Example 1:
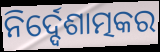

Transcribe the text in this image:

ନିର୍ଦ୍ଦେଶାତ୍ମକର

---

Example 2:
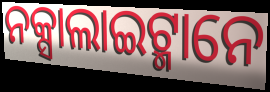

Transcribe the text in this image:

ନକ୍ସାଲାଇଟ୍ମାନେ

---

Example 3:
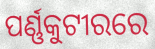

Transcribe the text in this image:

ପର୍ଣ୍ଣକୁଟୀରରେ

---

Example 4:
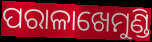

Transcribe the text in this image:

ପରାଳାଖେମୁଣ୍ଡି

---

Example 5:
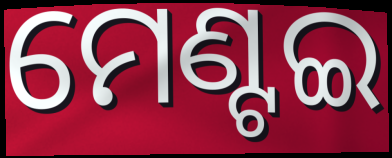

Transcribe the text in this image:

ମେଣ୍ଟଇ